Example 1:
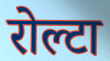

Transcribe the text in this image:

रोल्टा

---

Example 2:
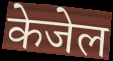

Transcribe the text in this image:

केजेल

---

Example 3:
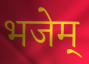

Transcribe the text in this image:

भजेम्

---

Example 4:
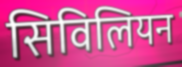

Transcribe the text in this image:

सिविलियन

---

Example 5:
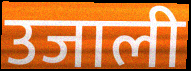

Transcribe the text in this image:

उजाली